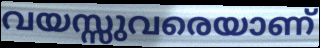
വയസ്സുവരെയാണ്